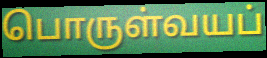
பொருள்வயப்